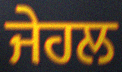
ਜੇਹਲ